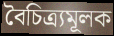
বৈচিত্ৰ্যমূলক